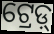
ଟ୍ରେଡ଼୍